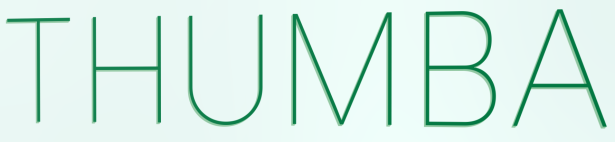
THUMBA